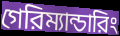
গেরিম্যান্ডারিং